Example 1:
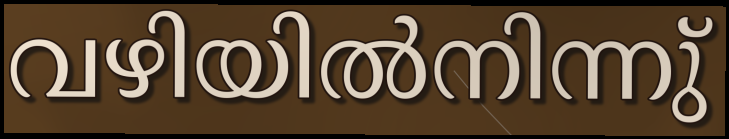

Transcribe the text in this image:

വഴിയിൽനിന്നു്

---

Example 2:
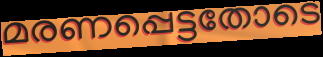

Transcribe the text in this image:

മരണപ്പെട്ടതോടെ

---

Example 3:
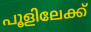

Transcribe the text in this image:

പൂളിലേക്ക്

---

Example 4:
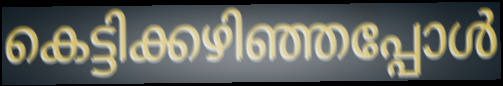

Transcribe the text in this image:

കെട്ടിക്കഴിഞ്ഞപ്പോൾ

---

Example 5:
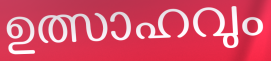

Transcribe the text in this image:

ഉത്സാഹവും